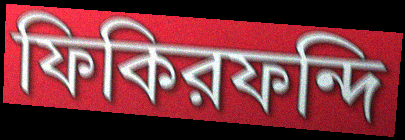
ফিকিরফন্দি